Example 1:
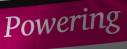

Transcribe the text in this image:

Powering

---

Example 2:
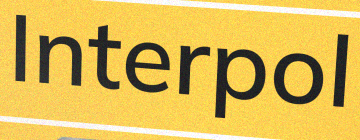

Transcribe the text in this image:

Interpol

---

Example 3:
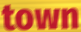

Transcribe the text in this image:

town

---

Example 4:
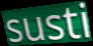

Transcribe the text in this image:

susti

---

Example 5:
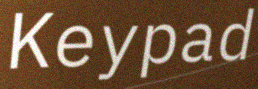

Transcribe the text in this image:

Keypad